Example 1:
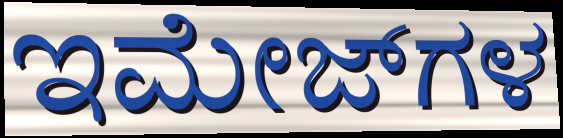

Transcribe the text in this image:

ಇಮೇಜ್‌ಗಳ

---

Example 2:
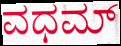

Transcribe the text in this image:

ವಧಮ್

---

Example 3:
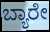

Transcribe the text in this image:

ಬ್ಯಾರೇ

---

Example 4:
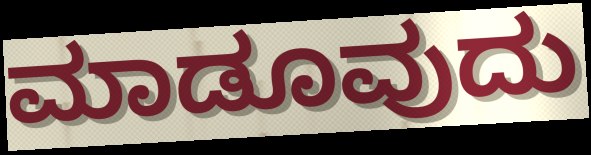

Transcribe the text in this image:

ಮಾಡೂವುದು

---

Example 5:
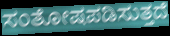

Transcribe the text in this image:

ಸಂತೋಷಪಡಿಸುತ್ತದೆ